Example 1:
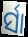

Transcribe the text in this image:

ର୍ସା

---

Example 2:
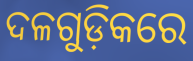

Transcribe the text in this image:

ଦଳଗୁଡ଼ିକରେ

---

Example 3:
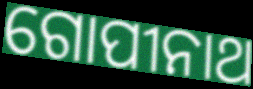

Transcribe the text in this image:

ଗୋପୀନାଥ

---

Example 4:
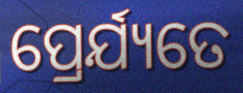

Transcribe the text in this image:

ପ୍ରେର୍ଯ୍ୟତେ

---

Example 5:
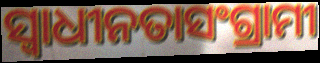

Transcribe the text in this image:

ସ୍ଵାଧୀନତାସଂଗ୍ରାମୀ